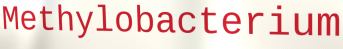
Methylobacterium